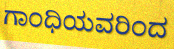
ಗಾಂಧಿಯವರಿಂದ